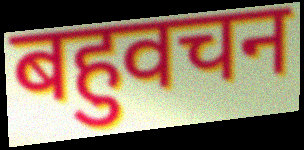
बहुवचन